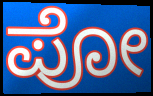
ಪೋ